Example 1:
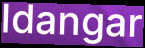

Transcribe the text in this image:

Idangar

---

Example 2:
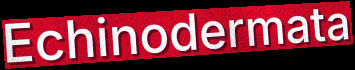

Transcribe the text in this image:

Echinodermata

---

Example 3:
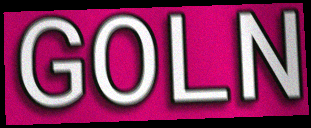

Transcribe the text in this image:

GOLN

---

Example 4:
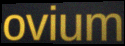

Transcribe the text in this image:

ovium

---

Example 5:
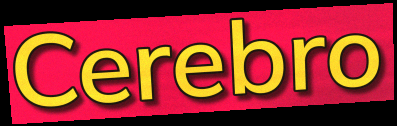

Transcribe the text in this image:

Cerebro